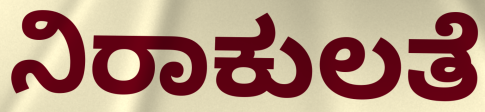
ನಿರಾಕುಲತೆ